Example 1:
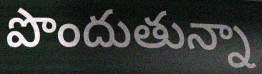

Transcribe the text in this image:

పొందుతున్నా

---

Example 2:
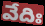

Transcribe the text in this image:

వేదిః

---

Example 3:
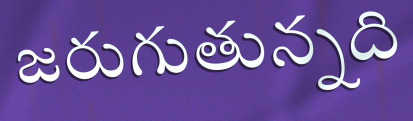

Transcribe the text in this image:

జరుగుతున్నది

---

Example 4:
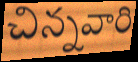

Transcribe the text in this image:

చిన్నవారి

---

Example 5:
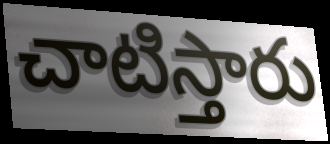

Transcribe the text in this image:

చాటిస్తారు